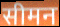
सीमन